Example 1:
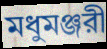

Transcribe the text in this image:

মধুমঞ্জরী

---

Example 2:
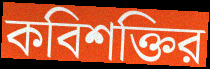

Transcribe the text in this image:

কবিশক্তির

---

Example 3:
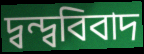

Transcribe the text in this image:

দ্বন্দ্ববিবাদ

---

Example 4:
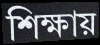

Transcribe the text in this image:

শিক্ষায়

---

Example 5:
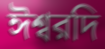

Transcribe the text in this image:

ঈশ্বরদি